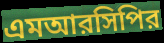
এমআরসিপির